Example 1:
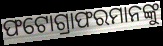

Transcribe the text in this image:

ଫଟୋଗ୍ରାଫରମାନଙ୍କୁ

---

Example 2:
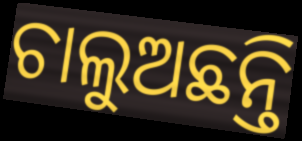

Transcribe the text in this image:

ଚାଲୁଅଛନ୍ତି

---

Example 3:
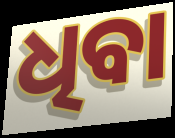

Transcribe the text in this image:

ଧିବା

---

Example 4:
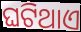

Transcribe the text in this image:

ଘଟିଥାଏ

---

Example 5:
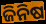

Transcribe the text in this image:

ଜିନିଷ